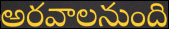
అరవాలనుంది